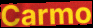
Carmo